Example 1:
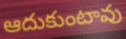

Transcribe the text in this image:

ఆదుకుంటావు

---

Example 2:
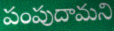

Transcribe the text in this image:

పంపుదామని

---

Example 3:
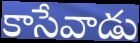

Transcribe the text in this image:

కాసేవాడు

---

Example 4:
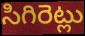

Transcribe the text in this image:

సిగిరెట్లు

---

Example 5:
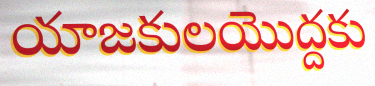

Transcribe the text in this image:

యాజకులయొద్దకు